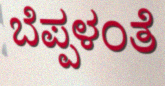
ಬೆಪ್ಪಳಂತೆ